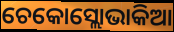
ଚେକୋସ୍ଲୋଭାକିଆ